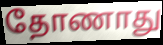
தோணாது